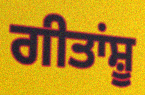
ਗੀਤਾਂਸ਼ੂ